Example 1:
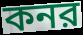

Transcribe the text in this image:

কনর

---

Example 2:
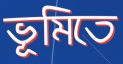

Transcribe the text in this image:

ভূমিতে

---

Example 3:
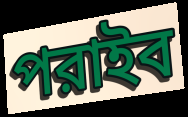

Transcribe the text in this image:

পরাইব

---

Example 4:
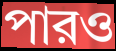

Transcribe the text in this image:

পারও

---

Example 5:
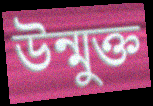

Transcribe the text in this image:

উন্মুক্ত